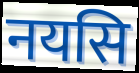
नयसि